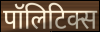
पॉलिटिक्स